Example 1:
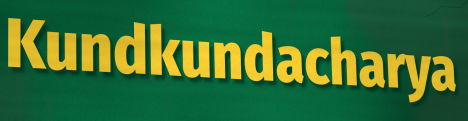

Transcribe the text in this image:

Kundkundacharya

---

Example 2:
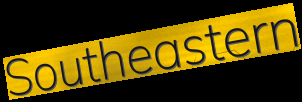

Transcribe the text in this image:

Southeastern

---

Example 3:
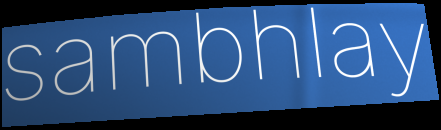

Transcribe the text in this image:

sambhlay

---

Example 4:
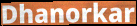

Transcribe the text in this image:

Dhanorkar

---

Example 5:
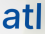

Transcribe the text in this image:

atl